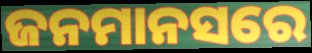
ଜନମାନସରେ